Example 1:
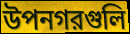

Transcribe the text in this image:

উপনগরগুলি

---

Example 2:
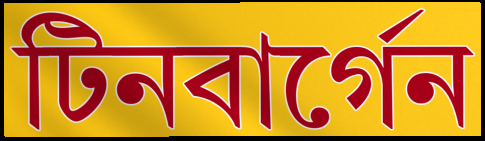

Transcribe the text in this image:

টিনবার্গেন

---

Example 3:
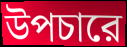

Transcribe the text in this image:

উপচারে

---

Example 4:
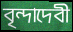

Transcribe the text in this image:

বৃন্দাদেবী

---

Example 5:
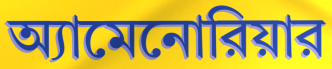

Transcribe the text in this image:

অ্যামেনোরিয়ার